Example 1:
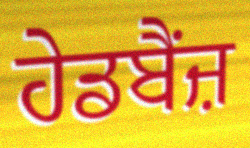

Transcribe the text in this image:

ਹੇਡਬੈਂਜ਼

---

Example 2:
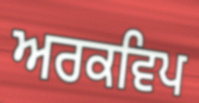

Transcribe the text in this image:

ਅਰਕਵਿਪ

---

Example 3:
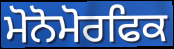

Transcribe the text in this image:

ਮੋਨੋਮੋਰਫਿਕ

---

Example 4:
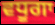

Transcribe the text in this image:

ਵਧੂਗਾ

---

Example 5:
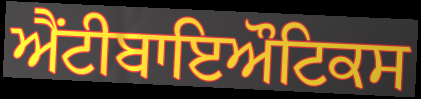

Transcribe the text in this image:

ਐਂਟੀਬਾਇਔਟਿਕਸ